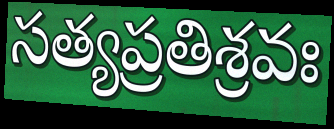
సత్యప్రతిశ్రవః